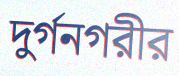
দুর্গনগরীর